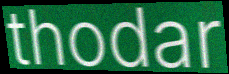
thodar